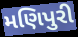
મણિપુરી